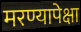
मरण्यापेक्षा